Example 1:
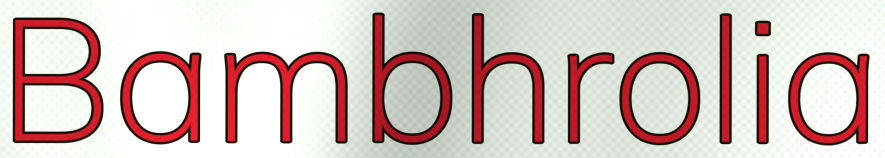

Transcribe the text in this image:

Bambhrolia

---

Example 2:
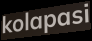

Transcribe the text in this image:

kolapasi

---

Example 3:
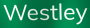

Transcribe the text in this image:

Westley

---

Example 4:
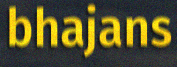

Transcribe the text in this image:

bhajans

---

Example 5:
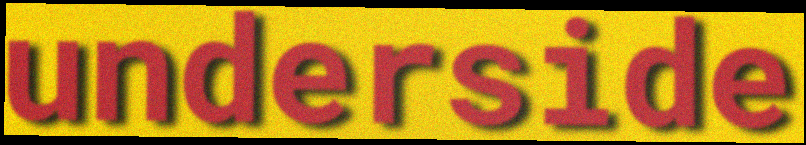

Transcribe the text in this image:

underside